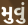
મુવું